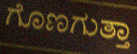
ಗೊಣಗುತ್ತಾ